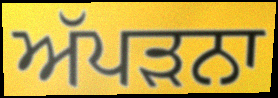
ਅੱਪੜਨਾ